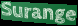
Surange